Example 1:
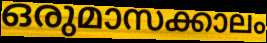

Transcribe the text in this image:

ഒരുമാസക്കാലം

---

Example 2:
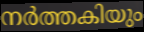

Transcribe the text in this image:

നർത്തകിയും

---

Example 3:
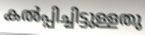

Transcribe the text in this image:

കൽപ്പിച്ചിട്ടുള്ളതു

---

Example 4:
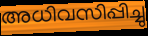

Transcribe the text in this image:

അധിവസിപ്പിച്ചു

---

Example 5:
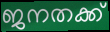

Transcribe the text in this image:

ജനതക്ക്